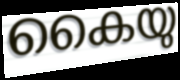
കൈയു